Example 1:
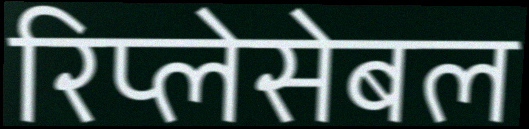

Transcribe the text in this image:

रिप्लेसेबल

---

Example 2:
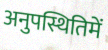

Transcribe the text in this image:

अनुपस्थितिमें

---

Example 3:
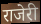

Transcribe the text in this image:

राजेरी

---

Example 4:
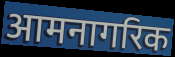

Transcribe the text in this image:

आमनागरिक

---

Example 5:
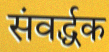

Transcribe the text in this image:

संवर्द्धक